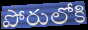
పోరులోకి